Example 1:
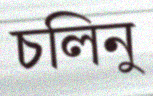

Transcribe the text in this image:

চলিনু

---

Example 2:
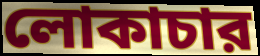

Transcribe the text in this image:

লোকাচার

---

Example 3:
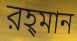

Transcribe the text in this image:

রহ্‌মান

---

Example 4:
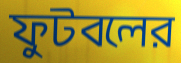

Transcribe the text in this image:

ফুটবলের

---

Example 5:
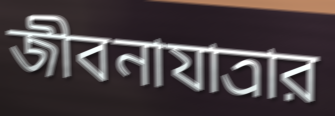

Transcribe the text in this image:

জীবনাযাত্রার